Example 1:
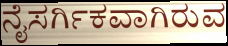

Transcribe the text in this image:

ನೈಸರ್ಗಿಕವಾಗಿರುವ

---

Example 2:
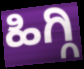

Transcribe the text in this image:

ಹಿಗ್ಗಿ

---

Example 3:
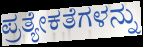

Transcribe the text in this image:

ಪ್ರತ್ಯೇಕತೆಗಳನ್ನು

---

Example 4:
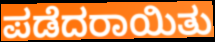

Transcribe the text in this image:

ಪಡೆದರಾಯಿತು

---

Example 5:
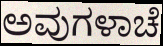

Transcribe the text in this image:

ಅವುಗಳಾಚೆ